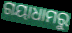
ଗୟାଧାମରୁ